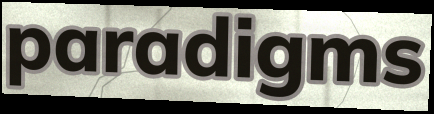
paradigms